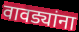
वावड्यांना